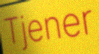
Tjener